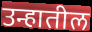
उन्हातील